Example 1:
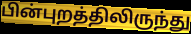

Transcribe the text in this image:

பின்புறத்திலிருந்து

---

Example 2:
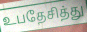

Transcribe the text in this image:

உபதேசித்து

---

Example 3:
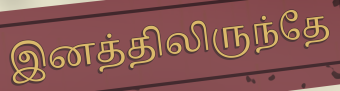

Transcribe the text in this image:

இனத்திலிருந்தே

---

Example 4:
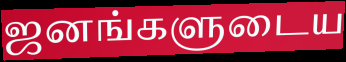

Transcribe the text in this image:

ஜனங்களுடைய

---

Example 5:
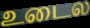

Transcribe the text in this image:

உடைல